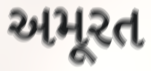
અમૂરત